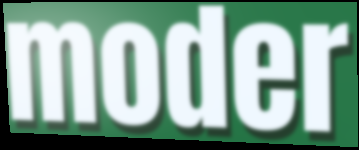
moder